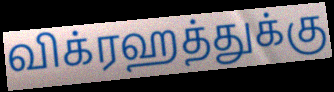
விக்ரஹத்துக்கு